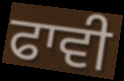
ਫਾਵੀ